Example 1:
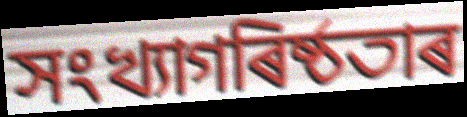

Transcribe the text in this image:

সংখ্যাগৰিষ্ঠতাৰ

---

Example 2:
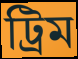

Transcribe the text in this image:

ট্ৰিম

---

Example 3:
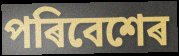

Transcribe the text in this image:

পৰিবেশেৰ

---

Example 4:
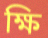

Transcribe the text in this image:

ক্ষি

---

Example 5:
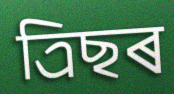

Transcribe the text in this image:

ত্ৰিছৰ